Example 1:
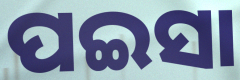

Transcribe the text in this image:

ପଇସା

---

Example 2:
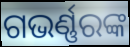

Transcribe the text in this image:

ଗଭର୍ଣ୍ଣରଙ୍କ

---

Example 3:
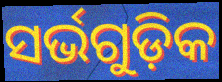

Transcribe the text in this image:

ସର୍ଭଗୁଡ଼ିକ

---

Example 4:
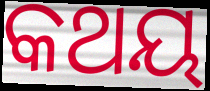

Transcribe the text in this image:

କଥୟ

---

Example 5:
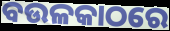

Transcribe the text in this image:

ବଉଳକାଠରେ